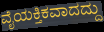
ವೈಯಕ್ತಿಕವಾದದ್ದು